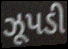
ઝૂપડી